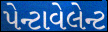
પેન્ટાવેલેન્ટ